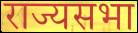
राज्यसभा